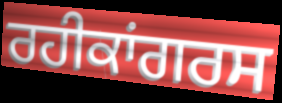
ਰਹੀਕਾਂਗਰਸ